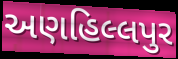
અણહિલ્લપુર